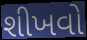
શીખવો